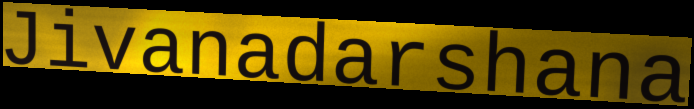
Jivanadarshana